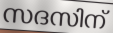
സദസിന്